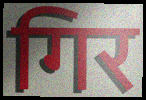
गिर